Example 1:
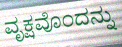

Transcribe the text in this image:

ವೃಕ್ಷವೊಂದನ್ನು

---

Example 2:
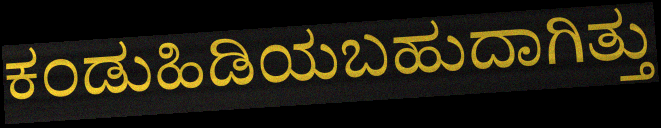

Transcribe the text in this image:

ಕಂಡುಹಿಡಿಯಬಹುದಾಗಿತ್ತು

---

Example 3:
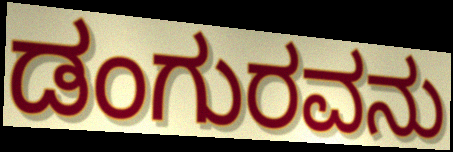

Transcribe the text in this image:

ಡಂಗುರವನು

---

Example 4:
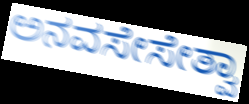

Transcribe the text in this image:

ಅನವಸೇಸೇತ್ವಾ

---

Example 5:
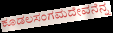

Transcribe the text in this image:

ಕೂಡಲಸಂಗಮದೇವನೆನ್ನ